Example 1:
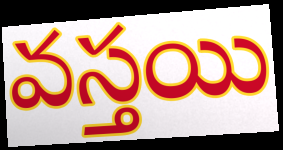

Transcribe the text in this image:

వస్తయి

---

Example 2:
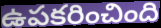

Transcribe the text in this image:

ఉపకరించింది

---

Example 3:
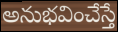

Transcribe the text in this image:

అనుభవించేస్తే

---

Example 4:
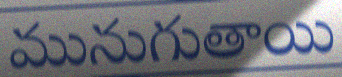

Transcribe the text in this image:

మునుగుతాయి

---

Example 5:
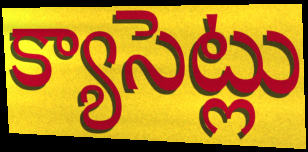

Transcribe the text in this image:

క్యాసెట్లు